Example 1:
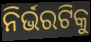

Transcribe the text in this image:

ନିର୍ଭରଟିକୁ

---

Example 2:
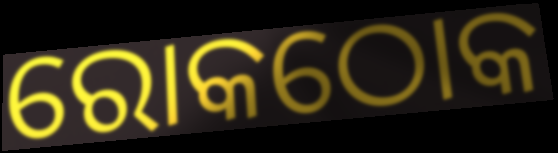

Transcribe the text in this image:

ରୋକଠୋକ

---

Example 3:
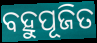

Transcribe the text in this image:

ବହୁପୂଜିତ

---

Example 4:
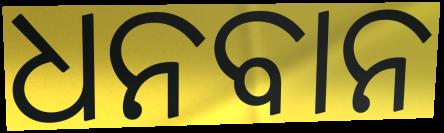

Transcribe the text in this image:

ଧନବାନ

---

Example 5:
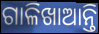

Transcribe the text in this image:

ଗାଳିଖାଆନ୍ତି